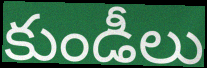
కుండీలు